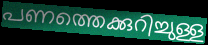
പണത്തെക്കുറിച്ചുള്ള